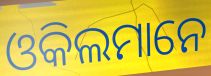
ଓକିଲମାନେ